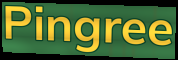
Pingree